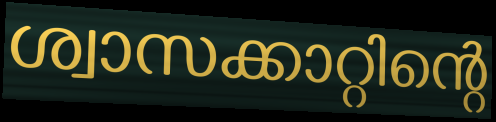
ശ്വാസക്കാറ്റിന്റെ